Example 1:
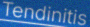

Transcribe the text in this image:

Tendinitis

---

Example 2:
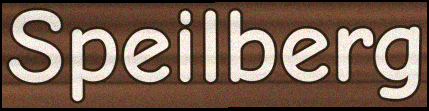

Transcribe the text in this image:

Speilberg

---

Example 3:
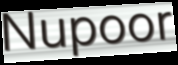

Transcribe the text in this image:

Nupoor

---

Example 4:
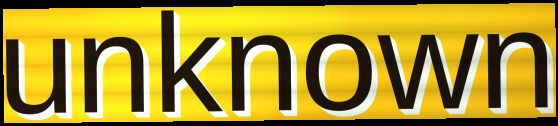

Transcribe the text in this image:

unknown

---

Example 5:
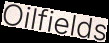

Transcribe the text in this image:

Oilfields